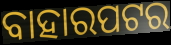
ବାହାରପଟର